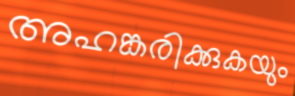
അഹങ്കരിക്കുകയും